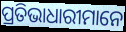
ପ୍ରତିଭାଧାରୀମାନେ